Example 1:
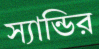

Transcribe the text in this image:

স্যান্ডির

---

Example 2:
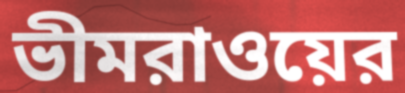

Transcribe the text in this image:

ভীমরাওয়ের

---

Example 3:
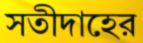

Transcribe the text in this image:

সতীদাহের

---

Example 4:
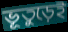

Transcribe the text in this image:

ভূতুড়েই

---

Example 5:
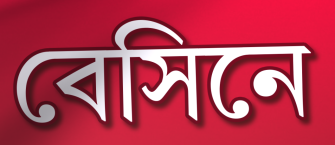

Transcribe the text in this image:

বেসিনে